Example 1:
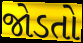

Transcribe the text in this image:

જોડતો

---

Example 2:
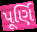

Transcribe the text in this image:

પૂર્ણિ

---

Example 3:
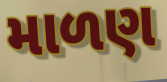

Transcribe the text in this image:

માળણ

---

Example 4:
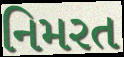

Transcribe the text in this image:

નિમરત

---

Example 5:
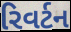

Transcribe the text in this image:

રિવર્ટન